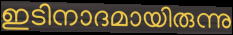
ഇടിനാദമായിരുന്നു